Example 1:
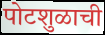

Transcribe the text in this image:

पोटशुळाची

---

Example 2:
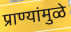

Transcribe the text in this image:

प्राण्यांमुळे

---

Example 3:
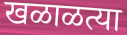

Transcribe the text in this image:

खळाळत्या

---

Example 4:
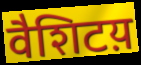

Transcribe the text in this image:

वैशिटय़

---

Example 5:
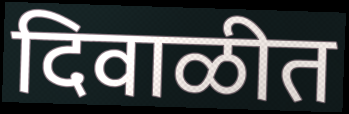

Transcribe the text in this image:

दिवाळीत